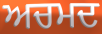
ਅਚਮਦ